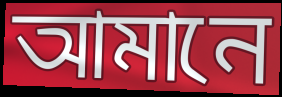
আমানে